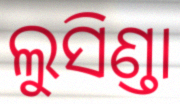
ଲୁସିଣ୍ଡା